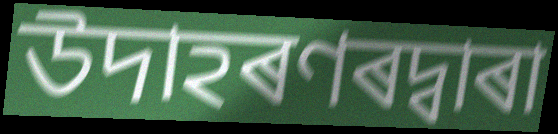
উদাহৰণৰদ্বাৰা